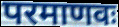
परमाणवः